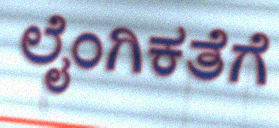
ಲೈಂಗಿಕತೆಗೆ